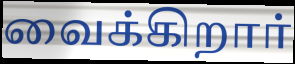
வைக்கிறார்